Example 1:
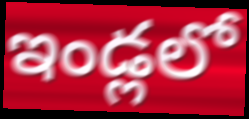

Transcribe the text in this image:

ఇండ్లలో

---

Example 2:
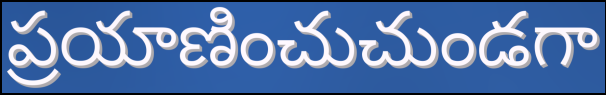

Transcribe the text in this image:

ప్రయాణించుచుండగా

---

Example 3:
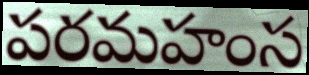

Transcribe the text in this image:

పరమహంస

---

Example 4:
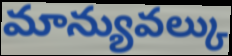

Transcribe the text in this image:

మాన్యువల్కు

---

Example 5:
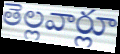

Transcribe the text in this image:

తెల్లవార్లూ